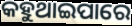
କହୁଥାଇପାରେ